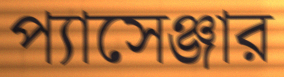
প্যাসেঞ্জার